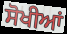
ਸੋਖੀਆਂ